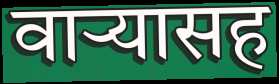
वार्‍यासह